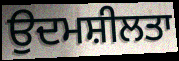
ਉਦਮਸ਼ੀਲਤਾ